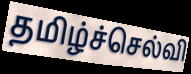
தமிழ்ச்செல்வி